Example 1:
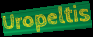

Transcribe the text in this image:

Uropeltis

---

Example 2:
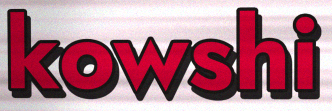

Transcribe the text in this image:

kowshi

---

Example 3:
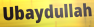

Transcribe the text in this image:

Ubaydullah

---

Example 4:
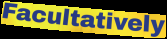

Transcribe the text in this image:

Facultatively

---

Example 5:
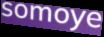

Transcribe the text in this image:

somoye